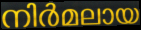
നിർമലായ